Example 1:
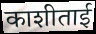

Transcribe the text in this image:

काशीताई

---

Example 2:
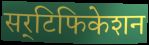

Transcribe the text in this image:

सर्टिफिकेशन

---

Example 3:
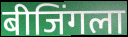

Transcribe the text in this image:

बीजिंगला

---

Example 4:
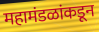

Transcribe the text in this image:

महामंडळांकडून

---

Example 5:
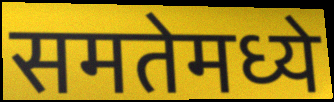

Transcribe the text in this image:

समतेमध्ये